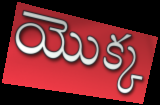
యొక్క